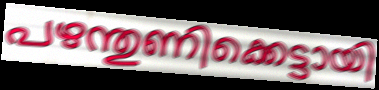
പഴന്തുണിക്കെട്ടായി